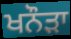
ਖਨੌੜਾ